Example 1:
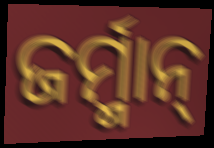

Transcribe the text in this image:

ଜର୍ମ୍ମାନ୍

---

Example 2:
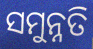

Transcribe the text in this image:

ସମୁନ୍ନତି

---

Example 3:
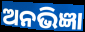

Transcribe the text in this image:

ଅନଭିଜ୍ଞା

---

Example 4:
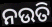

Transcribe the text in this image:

ନଉତି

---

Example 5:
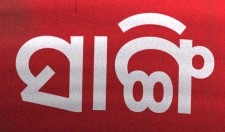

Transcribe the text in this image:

ସାଙ୍ଗି